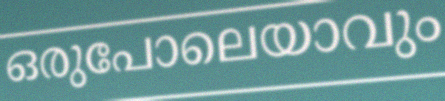
ഒരുപോലെയാവും